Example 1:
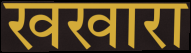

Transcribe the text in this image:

खखारा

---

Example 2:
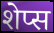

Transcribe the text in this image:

शेप्स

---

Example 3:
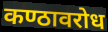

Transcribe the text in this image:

कण्ठावरोध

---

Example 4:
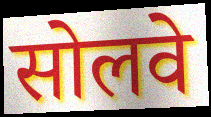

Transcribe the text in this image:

सोलवे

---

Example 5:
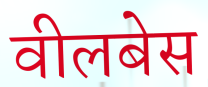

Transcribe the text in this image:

वीलबेस